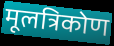
मूलत्रिकोण